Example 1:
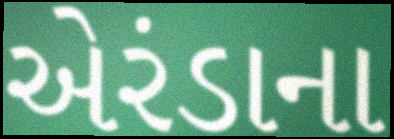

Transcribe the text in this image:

એરંડાના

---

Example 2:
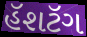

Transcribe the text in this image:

હૅશટૅગ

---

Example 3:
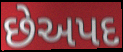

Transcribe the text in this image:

છેઅપદ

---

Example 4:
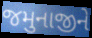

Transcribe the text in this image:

જમુનાજીને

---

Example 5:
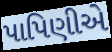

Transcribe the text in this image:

પાપિણીએ